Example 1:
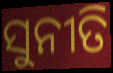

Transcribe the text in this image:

ସୁନୀତି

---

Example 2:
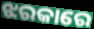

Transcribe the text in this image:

ଝରକାରେ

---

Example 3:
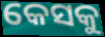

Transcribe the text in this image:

କେସକୁ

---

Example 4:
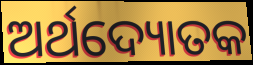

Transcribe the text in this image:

ଅର୍ଥଦ୍ୟୋତକ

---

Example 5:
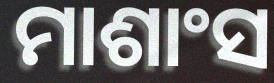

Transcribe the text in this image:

ମାଶାଂସ